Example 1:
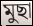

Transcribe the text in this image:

মুছা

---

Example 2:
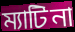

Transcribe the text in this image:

ম্যাটিনা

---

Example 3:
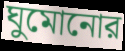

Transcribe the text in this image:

ঘুমোনোর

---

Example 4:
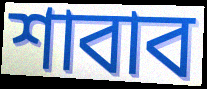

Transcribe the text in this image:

শাবাব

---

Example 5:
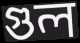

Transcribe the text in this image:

গুল